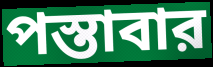
পস্তাবার